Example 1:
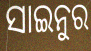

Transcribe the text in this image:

ସାଇନୁର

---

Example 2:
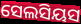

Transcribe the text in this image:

ସେଲସିୟସ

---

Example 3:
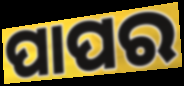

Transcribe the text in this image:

ପାପର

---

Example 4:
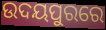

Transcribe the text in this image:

ଉଦୟପୁରରେ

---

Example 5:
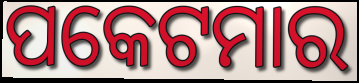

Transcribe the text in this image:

ପକେଟମାର